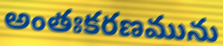
అంతఃకరణమును